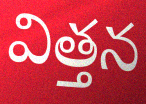
విత్తన